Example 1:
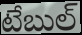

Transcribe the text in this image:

టేబుల్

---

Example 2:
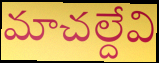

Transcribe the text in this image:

మాచల్దేవి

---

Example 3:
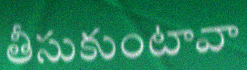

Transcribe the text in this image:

తీసుకుంటావా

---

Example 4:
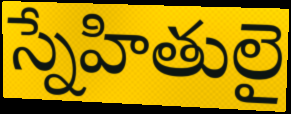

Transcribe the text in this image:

స్నేహితులై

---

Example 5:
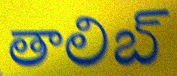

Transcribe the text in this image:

తాలిబ్